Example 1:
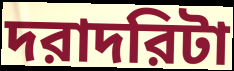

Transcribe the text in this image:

দরাদরিটা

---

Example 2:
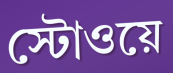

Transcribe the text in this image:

স্টোওয়ে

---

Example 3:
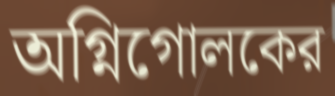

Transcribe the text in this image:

অগ্নিগোলকের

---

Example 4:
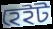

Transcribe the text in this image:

হেইট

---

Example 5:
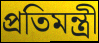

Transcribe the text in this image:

প্রতিমন্ত্রী